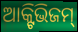
ଆକ୍ଟିଭିଜମ୍